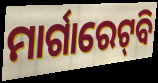
ମାର୍ଗାରେଟ୍‌ବି